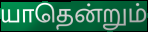
யாதென்றும்